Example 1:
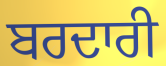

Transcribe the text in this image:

ਬਰਦਾਰੀ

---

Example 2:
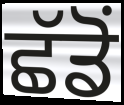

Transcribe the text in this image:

ਛੱਡੋਂ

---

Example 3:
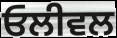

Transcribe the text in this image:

ਓਲੀਵਲ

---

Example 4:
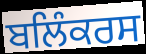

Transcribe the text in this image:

ਬਲਿੰਕਰਸ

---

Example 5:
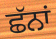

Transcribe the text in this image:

ਛੱਨਾਂ